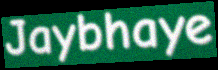
Jaybhaye